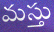
మస్తు